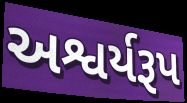
અશ્વર્યરૂપ